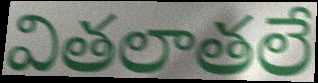
వితలాతలే